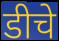
डीचे